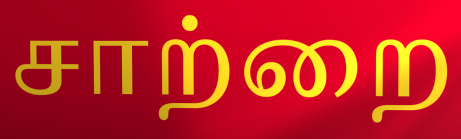
சாற்றை